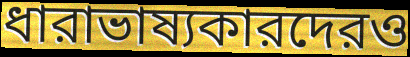
ধারাভাষ্যকারদেরও